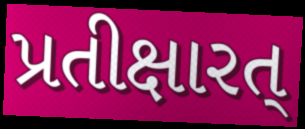
પ્રતીક્ષારત્